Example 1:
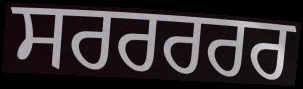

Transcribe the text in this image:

ਸਰਰਰਰਰ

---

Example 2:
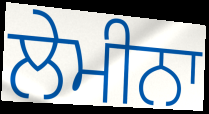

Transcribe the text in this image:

ਲੇਮੀਨਾ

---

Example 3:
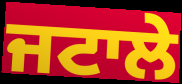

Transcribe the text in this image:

ਜਟਾਲੇ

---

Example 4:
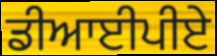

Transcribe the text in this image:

ਡੀਆਈਪੀਏ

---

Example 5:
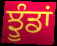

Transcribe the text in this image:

ਝੂੰਡਾਂ